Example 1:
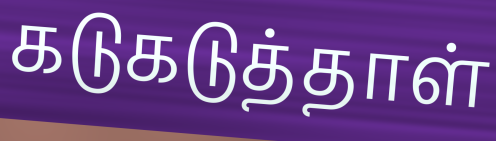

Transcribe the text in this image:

கடுகடுத்தாள்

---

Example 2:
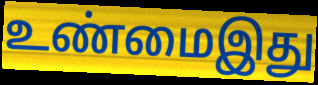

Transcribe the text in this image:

உண்மைஇது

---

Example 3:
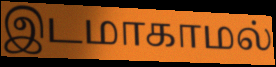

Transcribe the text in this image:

இடமாகாமல்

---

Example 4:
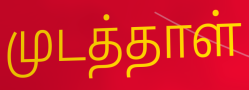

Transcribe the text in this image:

முடத்தாள்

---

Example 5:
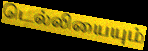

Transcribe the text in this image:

டெல்லியையும்